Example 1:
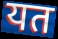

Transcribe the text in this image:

यत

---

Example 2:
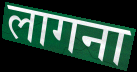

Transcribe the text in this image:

लागना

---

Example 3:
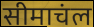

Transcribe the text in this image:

सीमाचंल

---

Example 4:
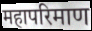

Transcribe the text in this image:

महापरिमाण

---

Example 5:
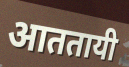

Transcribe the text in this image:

आततायी